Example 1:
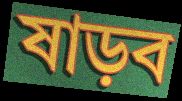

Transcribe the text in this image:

ষাড়ব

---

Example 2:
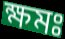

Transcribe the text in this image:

ক্ষমঃ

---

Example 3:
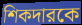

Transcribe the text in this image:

শিকদারকে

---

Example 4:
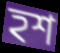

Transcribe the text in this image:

হশ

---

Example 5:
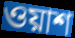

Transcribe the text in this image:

ওয়াশ